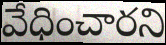
వేధించారని